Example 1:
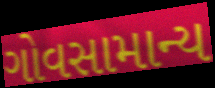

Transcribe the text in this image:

ગોવસામાન્ય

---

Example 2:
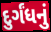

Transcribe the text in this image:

દુર્ગંધનું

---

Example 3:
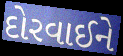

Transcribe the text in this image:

દોરવાઈને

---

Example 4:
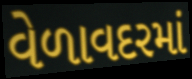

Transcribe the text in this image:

વેળાવદરમાં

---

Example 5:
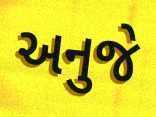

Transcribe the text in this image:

અનુજે